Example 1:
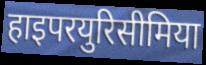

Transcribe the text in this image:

हाइपरयुरिसीमिया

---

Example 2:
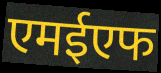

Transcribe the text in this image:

एमईएफ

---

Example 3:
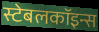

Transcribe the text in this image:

स्टेबलकॉइन्स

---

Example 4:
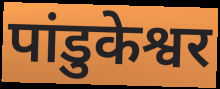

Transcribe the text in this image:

पांडुकेश्वर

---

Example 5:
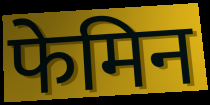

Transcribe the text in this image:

फेमिन